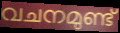
വചനമുണ്ട്